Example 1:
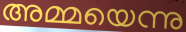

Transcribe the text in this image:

അമ്മയെന്നു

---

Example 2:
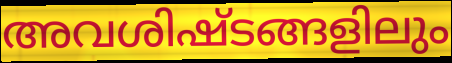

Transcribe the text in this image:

അവശിഷ്ടങ്ങളിലും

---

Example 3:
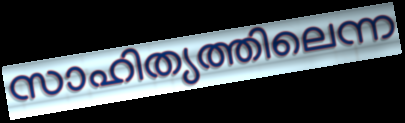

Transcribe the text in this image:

സാഹിത്യത്തിലെന്ന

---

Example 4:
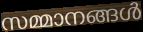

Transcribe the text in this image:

സമ്മാനങ്ങൾ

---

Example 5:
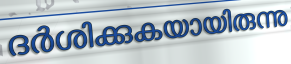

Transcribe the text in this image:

ദർശിക്കുകയായിരുന്നു